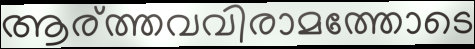
ആര്ത്തവവിരാമത്തോടെ